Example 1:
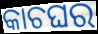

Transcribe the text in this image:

କାଚଘର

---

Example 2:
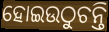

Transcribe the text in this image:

ହୋଇଉଠୁଚନ୍ତି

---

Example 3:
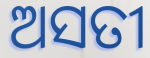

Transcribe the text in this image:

ଅସତୀ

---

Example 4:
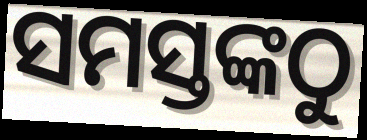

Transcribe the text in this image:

ସମସ୍ତଙ୍କଠୁ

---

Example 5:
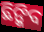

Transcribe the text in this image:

ଛିଙ୍କିବ